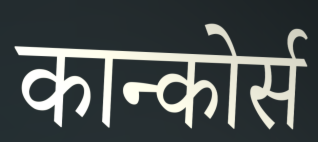
कान्कोर्स